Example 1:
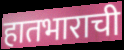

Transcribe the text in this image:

हातभाराची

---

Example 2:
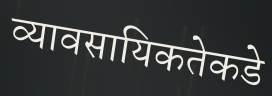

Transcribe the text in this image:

व्यावसायिकतेकडे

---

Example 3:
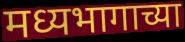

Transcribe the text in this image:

मध्यभागाच्या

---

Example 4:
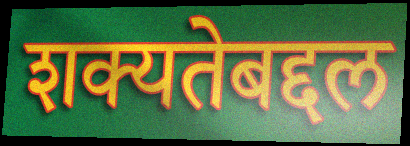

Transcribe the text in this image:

शक्यतेबद्दल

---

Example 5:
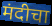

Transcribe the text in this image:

मंदीचा